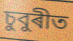
চুবুৰীত